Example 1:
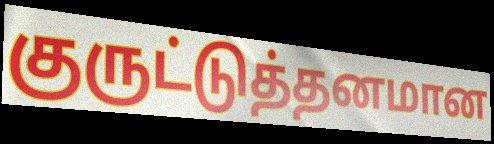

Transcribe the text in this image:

குருட்டுத்தனமான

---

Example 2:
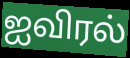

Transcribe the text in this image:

ஐவிரல்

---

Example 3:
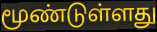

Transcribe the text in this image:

மூண்டுள்ளது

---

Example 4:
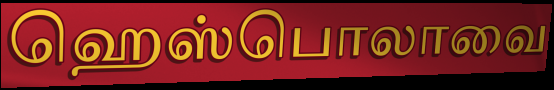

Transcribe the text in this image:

ஹெஸ்பொலாவை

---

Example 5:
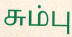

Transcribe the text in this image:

சும்பு